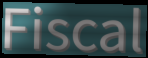
Fiscal